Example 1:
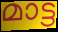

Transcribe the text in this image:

മാട്ട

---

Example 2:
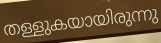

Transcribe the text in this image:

തള്ളുകയായിരുന്നു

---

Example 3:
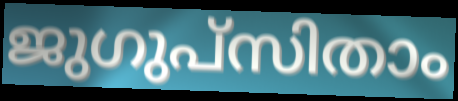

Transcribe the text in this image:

ജുഗുപ്സിതാം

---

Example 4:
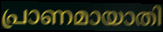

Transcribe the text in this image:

പ്രാണമായാതി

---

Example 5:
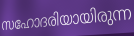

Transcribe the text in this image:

സഹോദരിയായിരുന്ന